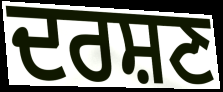
ਦਰਸ਼ਣ